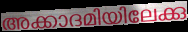
അക്കാദമിയിലേക്കു